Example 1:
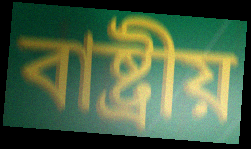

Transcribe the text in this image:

বাষ্ট্রীয়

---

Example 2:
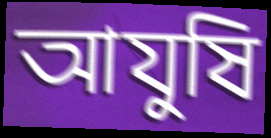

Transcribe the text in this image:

আযুষি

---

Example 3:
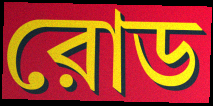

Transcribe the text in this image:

রোড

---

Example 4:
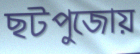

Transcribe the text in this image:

ছটপুজোয়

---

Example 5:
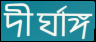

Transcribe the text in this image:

দীর্ঘাঙ্গ